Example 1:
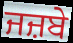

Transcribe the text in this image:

ਜਜ਼ਬੇ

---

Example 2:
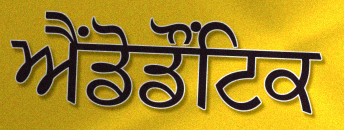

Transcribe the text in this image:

ਐਂਡੋਡੌਂਟਿਕ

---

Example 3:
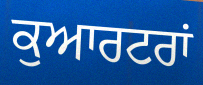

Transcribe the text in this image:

ਕੁਆਰਟਰਾਂ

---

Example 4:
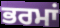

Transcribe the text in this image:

ਭਰਮਾਂ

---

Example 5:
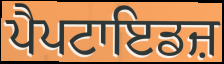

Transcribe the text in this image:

ਪੈਪਟਾਇਡਜ਼